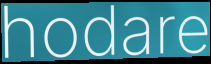
hodare